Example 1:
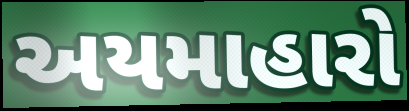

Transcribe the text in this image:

અયમાહારો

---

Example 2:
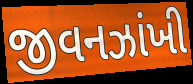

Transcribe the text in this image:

જીવનઝાંખી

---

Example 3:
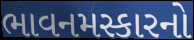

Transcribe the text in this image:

ભાવનમસ્કારનો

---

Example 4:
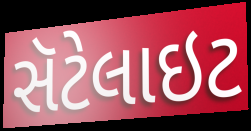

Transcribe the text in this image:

સૅટેલાઇટ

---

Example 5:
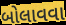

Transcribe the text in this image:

બોલાવવા